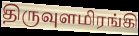
திருவுளமிரங்கி